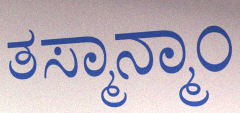
ತಸ್ಮಾನ್ಮಾಂ